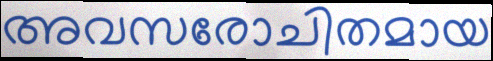
അവസരോചിതമായ